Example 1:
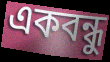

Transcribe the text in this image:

একবন্ধু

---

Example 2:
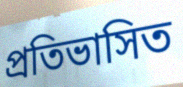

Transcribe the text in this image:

প্রতিভাসিত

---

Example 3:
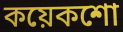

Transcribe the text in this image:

কয়েকশো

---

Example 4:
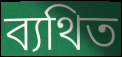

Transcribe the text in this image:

ব্যথিত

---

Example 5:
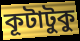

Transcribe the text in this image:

কূটাটুকু